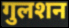
गुलशन